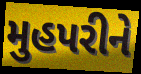
મુહપરીને